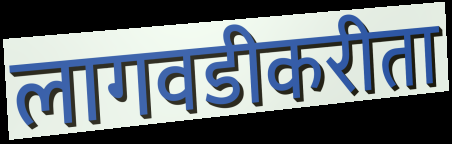
लागवडीकरीता